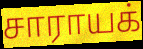
சாராயக்